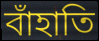
বাঁহাতি